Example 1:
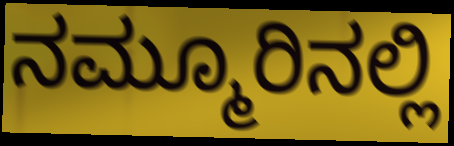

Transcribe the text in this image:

ನಮ್ಮೂರಿನಲ್ಲಿ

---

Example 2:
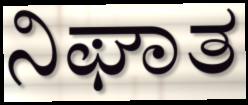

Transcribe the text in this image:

ನಿಘಾತ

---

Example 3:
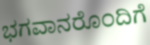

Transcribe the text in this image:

ಭಗವಾನರೊಂದಿಗೆ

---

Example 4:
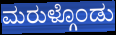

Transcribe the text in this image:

ಮರುಳ್ಗೊಂಡು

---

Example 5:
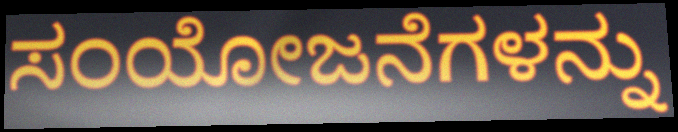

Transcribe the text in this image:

ಸಂಯೋಜನೆಗಳನ್ನು